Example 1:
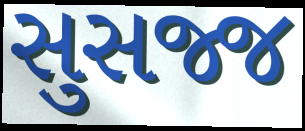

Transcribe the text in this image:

સુસજ્જ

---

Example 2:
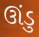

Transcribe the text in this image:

ઊંડુ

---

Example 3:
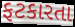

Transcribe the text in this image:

ફટકારતા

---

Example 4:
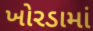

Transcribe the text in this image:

ખોરડામાં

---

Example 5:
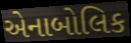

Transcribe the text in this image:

એનાબોલિક